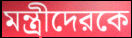
মন্ত্রীদেরকে